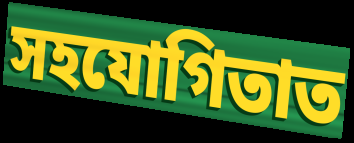
সহযোগিতাত